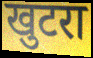
खुटरा